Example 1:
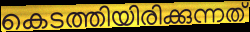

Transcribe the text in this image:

കെടത്തിയിരിക്കുന്നത്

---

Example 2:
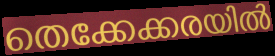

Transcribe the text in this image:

തെക്കേക്കരയിൽ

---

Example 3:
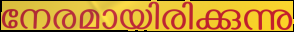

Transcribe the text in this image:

നേരമായിരിക്കുന്നു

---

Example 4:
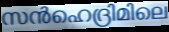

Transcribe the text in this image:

സൻഹെദ്രിമിലെ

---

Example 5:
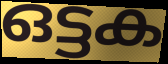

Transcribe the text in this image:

ഒട്ടക